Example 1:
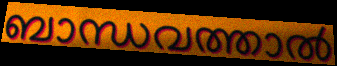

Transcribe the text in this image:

ബാന്ധവത്താൽ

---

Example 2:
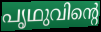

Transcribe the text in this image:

പൃഥുവിന്റെ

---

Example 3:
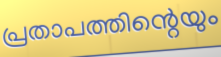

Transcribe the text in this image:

പ്രതാപത്തിന്റെയും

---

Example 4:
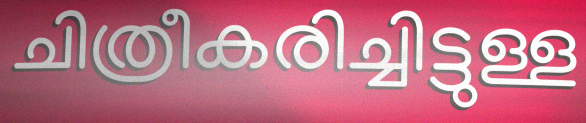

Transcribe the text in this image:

ചിത്രീകരിച്ചിട്ടുള്ള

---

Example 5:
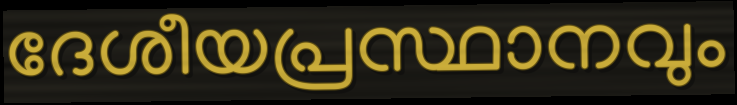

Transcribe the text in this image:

ദേശീയപ്രസ്ഥാനവും